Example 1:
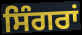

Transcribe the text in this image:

ਸਿੰਗਰਾਂ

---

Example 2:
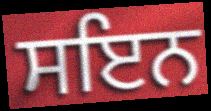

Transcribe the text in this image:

ਸਇਨ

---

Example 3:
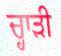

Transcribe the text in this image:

ਚ੍ਹਾੜੀ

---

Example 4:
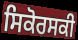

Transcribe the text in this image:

ਸਿਕੋਰਸਕੀ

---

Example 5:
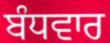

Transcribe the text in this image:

ਬੰਧਵਾਰ